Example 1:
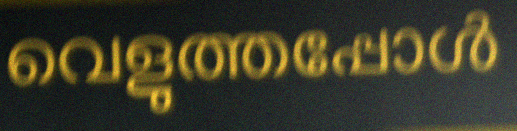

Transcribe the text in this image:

വെളുത്തപ്പോൾ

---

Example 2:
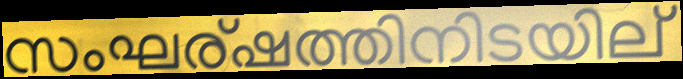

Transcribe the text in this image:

സംഘര്ഷത്തിനിടയില്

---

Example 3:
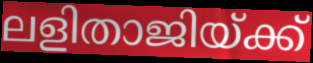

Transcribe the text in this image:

ലളിതാജിയ്ക്ക്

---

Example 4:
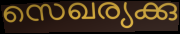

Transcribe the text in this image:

സെഖര്യക്കു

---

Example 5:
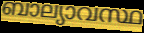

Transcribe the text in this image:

ബാല്യാവസ്ഥ